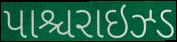
પાશ્ચરાઇઝ્ડ